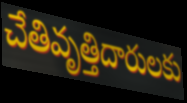
చేతివృత్తిదారులకు